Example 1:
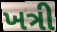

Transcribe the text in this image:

ખત્રી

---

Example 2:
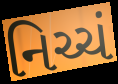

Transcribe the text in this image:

નિચ્ચં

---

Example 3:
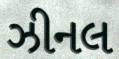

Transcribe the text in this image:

ઝીનલ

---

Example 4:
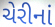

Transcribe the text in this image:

ચેરીનાં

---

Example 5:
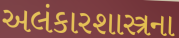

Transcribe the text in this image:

અલંકારશાસ્ત્રના